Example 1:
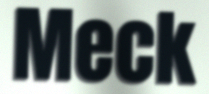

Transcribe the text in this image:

Meck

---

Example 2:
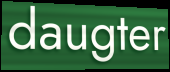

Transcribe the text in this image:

daugter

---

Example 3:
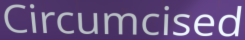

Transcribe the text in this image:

Circumcised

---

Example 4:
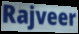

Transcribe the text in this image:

Rajveer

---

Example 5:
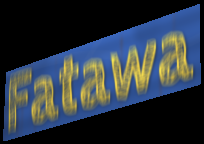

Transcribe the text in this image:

Fatawa